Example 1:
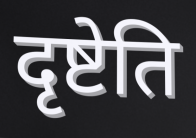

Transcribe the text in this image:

दृष्टेति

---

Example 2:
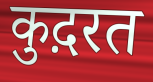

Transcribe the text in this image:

कुद़रत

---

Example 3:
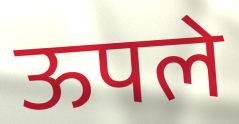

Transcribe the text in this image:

ऊपले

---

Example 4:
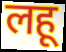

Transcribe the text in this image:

लहू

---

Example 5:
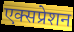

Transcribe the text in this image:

एक्सप्रेशन